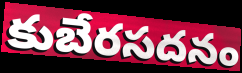
కుబేరసదనం